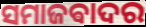
ସମାଜଵାଦର